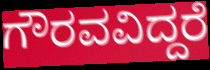
ಗೌರವವಿದ್ದರೆ